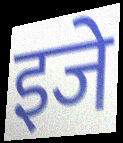
इजे